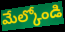
మేల్కోండి